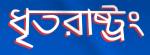
ধৃতরাষ্ট্রং